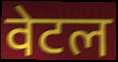
वेटल